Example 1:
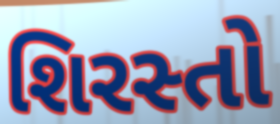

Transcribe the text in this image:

શિરસ્તો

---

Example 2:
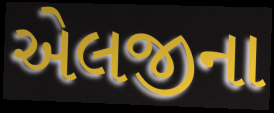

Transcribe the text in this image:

એલજીના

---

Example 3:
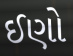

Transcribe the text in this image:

ઈણો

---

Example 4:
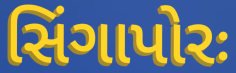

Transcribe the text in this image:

સિંગાપોરઃ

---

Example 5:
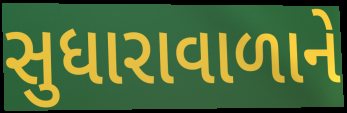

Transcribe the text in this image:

સુધારાવાળાને